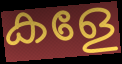
കളേ